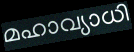
മഹാവ്യാധി